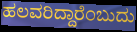
ಹಲವರಿದ್ದಾರೆಂಬುದು